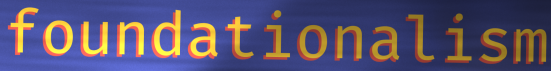
foundationalism